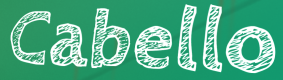
Cabello